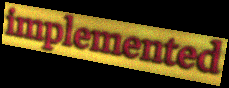
implemented